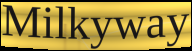
Milkyway